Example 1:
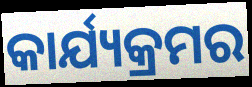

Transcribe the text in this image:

କାର୍ଯ୍ୟକ୍ରମର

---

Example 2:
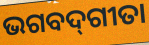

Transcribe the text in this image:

ଭଗବଦ୍‍ଗୀତା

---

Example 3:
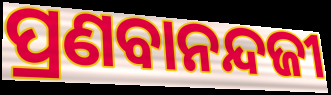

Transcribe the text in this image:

ପ୍ରଣବାନନ୍ଦଜୀ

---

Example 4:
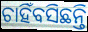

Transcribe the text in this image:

ଚାହିଁବସିଛନ୍ତି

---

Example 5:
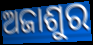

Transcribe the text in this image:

ଅଜାଶୁର